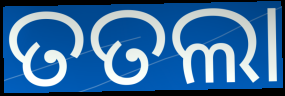
ତତଲା